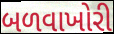
બળવાખોરી